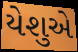
યેશુએ